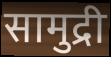
सामुद्री